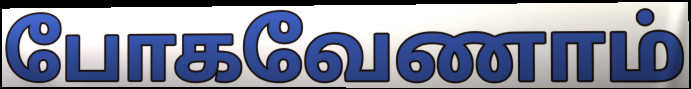
போகவேணாம்